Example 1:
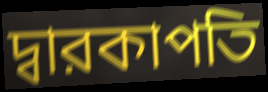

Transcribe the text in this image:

দ্বারকাপতি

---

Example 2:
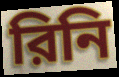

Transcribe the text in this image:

রিনি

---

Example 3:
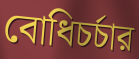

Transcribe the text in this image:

বোধিচর্চার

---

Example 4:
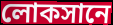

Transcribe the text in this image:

লোকসানে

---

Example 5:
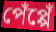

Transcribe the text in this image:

পেঁপ্পেঁ